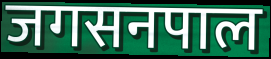
जगसनपाल